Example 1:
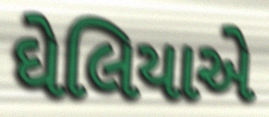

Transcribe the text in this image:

ઘેલિયાએ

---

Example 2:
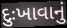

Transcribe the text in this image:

દુઃખાવાનું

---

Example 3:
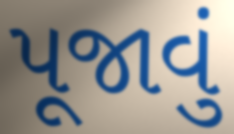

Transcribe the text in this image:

પૂજાવું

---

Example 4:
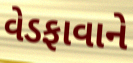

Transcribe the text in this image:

વેડફાવાને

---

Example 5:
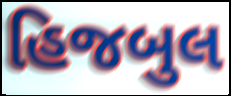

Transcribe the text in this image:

હિજબુલ